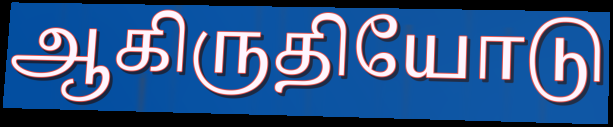
ஆகிருதியோடு